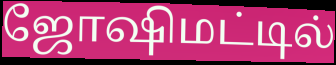
ஜோஷிமட்டில்